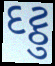
દટ્ઠુ